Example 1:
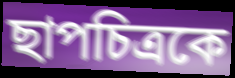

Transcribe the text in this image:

ছাপচিত্রকে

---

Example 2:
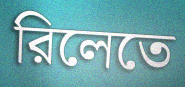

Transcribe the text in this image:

রিলেতে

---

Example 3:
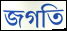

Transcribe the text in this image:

জগতি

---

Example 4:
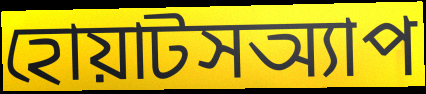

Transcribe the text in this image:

হোয়াটসঅ্যাপ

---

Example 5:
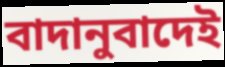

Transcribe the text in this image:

বাদানুবাদেই